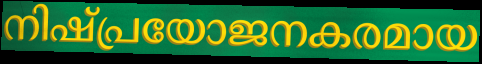
നിഷ്പ്രയോജനകരമായ